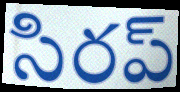
సిరప్